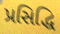
પ્રસિદ્ધિ